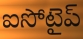
ఐసోటైప్